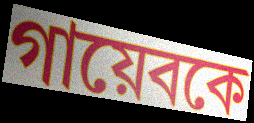
গায়েবকে